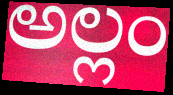
అల్లం